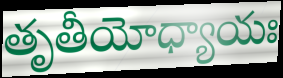
తృతీయోధ్యాయః